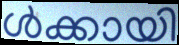
ൾക്കായി